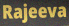
Rajeeva